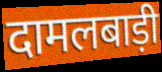
दामलबाड़ी